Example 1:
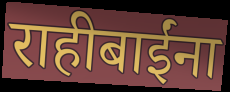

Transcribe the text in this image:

राहीबाईंना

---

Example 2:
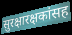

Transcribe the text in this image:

सुरक्षारक्षकांसह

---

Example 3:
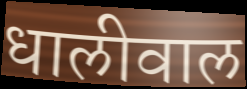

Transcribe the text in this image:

धालीवाल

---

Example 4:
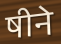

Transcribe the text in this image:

षीने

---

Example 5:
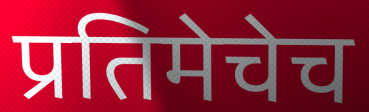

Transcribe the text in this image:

प्रतिमेचेच